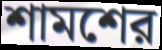
শামশের